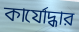
কার্যোদ্ধার